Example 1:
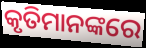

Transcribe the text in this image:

କୃତିମାନଙ୍କରେ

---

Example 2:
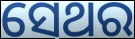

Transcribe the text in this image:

ସେଥର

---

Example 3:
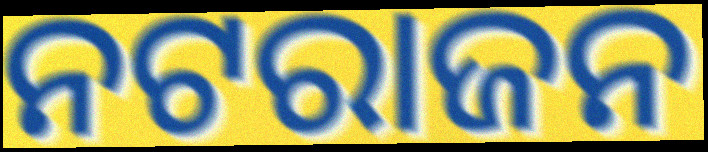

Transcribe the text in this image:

ନଟରାଜନ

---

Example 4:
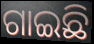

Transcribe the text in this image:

ଗାଇଛି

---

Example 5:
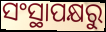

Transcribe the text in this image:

ସଂସ୍ଥାପକ୍ଷରୁ